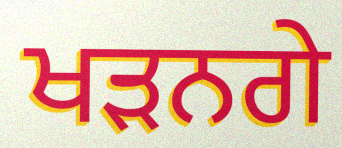
ਖੜਨਗੇ